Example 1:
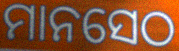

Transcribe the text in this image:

ମାନସେଠ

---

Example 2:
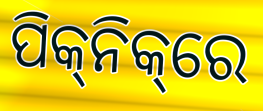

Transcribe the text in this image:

ପିକ୍‌ନିକ୍‌ରେ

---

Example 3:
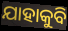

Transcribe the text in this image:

ଯାହାକୁବି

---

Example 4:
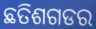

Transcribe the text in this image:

ଛତିଶଗଡର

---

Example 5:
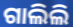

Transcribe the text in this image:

ଗାଲିଲି